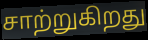
சாற்றுகிறது